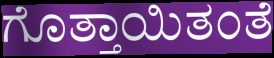
ಗೊತ್ತಾಯಿತಂತೆ